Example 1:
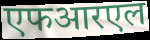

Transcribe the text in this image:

एफआरएल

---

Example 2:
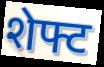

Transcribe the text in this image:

शेफ्ट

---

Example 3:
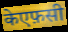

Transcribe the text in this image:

केएफ़सी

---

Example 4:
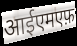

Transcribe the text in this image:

आईएमएफ़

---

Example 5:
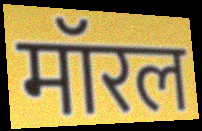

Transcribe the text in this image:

मॉरल